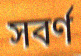
সবৰ্ণ